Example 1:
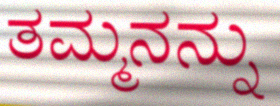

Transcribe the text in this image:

ತಮ್ಮನನ್ನು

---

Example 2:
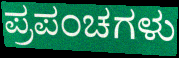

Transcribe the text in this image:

ಪ್ರಪಂಚಗಳು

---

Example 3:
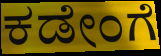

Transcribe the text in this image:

ಕಡೇಂಗೆ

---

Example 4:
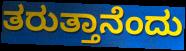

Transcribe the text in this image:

ತರುತ್ತಾನೆಂದು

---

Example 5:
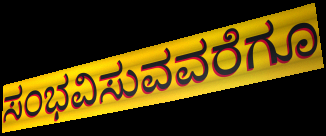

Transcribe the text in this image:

ಸಂಭವಿಸುವವರೆಗೂ